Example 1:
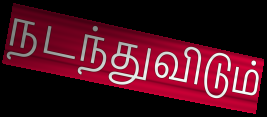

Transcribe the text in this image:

நடந்துவிடும்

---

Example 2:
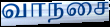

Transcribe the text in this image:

வாநசை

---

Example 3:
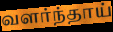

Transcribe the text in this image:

வளர்ந்தாய்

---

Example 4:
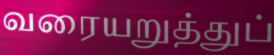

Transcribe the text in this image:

வரையறுத்துப்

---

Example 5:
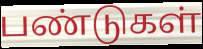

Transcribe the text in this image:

பண்டுகள்